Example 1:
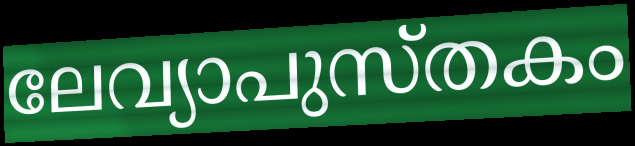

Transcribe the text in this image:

ലേവ്യാപുസ്തകം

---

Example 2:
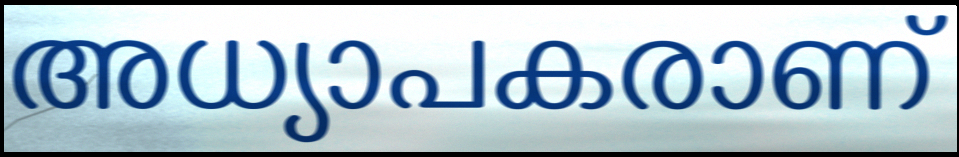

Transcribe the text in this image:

അധ്യാപകരാണ്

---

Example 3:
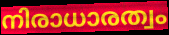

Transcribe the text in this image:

നിരാധാരത്വം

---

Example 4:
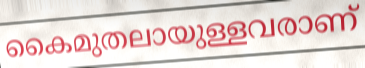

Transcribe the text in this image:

കൈമുതലായുള്ളവരാണ്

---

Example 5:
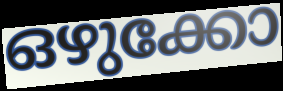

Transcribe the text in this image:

ഒഴുക്കോ